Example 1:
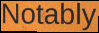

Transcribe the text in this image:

Notably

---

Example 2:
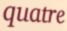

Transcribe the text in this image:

quatre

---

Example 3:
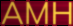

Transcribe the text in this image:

AMH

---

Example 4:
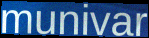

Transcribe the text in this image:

munivar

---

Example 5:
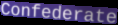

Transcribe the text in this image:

Confederate